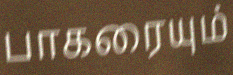
பாகரையும்